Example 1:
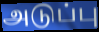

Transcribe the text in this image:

அடுப்பு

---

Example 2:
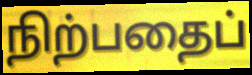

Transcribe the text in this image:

நிற்பதைப்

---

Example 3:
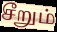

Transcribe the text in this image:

சீறும்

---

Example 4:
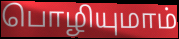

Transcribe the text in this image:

பொழியுமாம்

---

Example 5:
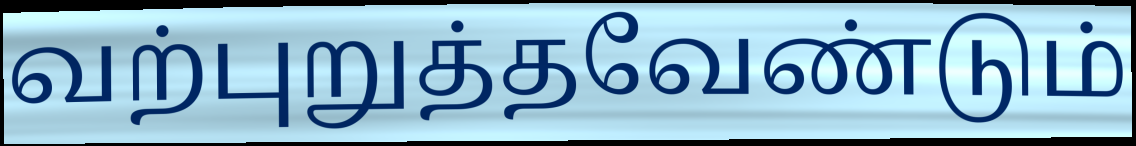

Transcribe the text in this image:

வற்புறுத்தவேண்டும்